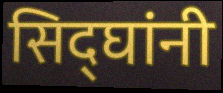
सिद्घांनी